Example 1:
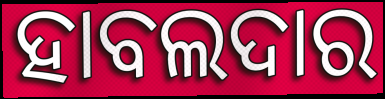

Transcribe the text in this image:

ହାବଲଦାର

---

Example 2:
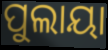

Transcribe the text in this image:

ପୁଲାୟା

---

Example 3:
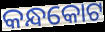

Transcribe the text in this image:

କନ୍ଧକୋଟ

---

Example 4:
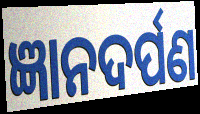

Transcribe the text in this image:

ଜ୍ଞାନଦର୍ପଣ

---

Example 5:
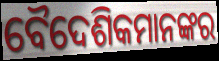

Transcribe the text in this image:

ବୈଦେଶିକମାନଙ୍କର